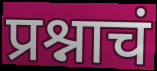
प्रश्नाचं